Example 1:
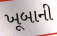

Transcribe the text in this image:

ખૂબાની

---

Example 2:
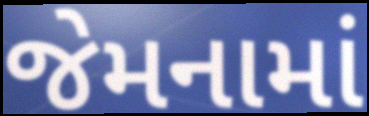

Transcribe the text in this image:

જેમનામાં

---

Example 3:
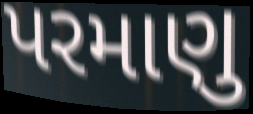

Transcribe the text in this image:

પરમાણુ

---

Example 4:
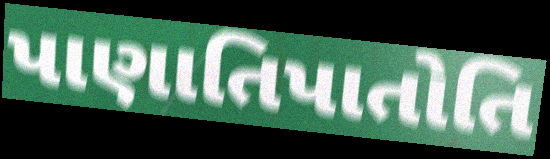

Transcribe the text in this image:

પાણાતિપાતોતિ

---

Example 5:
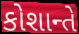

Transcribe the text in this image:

કોશાન્તે